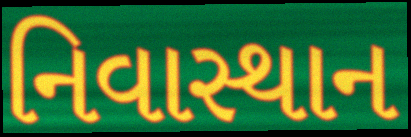
નિવાસ્થાન